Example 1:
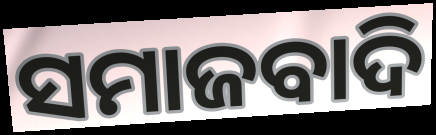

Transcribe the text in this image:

ସମାଜବାଦି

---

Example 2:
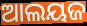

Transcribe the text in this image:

ଆଲୟଜ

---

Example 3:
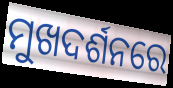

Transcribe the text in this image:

ମୁଖଦର୍ଶନରେ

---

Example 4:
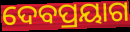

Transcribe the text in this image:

ଦେବପ୍ରୟାଗ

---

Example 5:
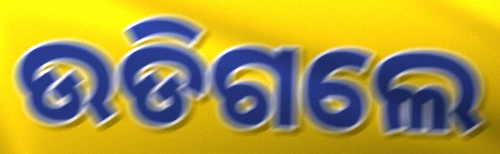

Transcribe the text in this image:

ଉଡିଗଲେ